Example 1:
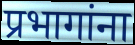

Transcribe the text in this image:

प्रभागांना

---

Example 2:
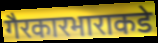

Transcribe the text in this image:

गैरकारभाराकडे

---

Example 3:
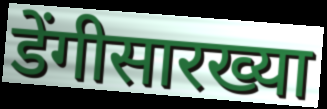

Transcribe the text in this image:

डेंगीसारख्या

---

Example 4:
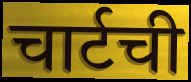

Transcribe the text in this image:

चार्टची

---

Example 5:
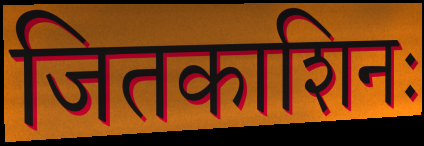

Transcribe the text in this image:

जितकाशिनः